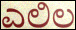
ಎಲಿಲ